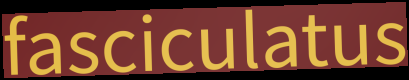
fasciculatus